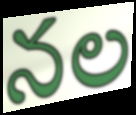
నల